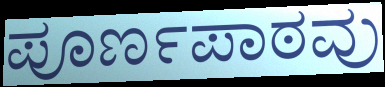
ಪೂರ್ಣಪಾಠವು